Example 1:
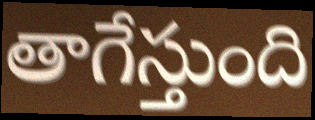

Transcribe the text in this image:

తాగేస్తుంది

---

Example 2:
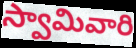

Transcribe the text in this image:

స్వామివారి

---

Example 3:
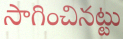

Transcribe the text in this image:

సాగించినట్టు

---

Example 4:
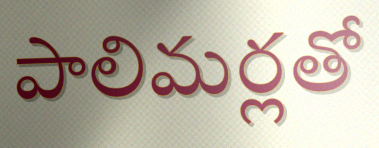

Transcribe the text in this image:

పాలిమర్లతో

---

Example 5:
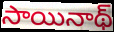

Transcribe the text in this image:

సాయినాథ్